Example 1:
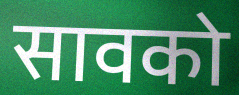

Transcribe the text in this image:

सावको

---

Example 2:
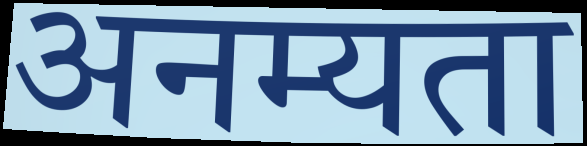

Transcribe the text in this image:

अनम्यता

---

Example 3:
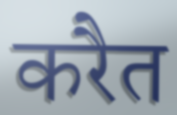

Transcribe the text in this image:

करैत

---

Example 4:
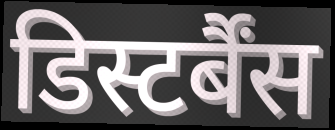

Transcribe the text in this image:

डिस्टर्बैंस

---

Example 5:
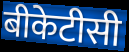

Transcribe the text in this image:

बीकेटीसी